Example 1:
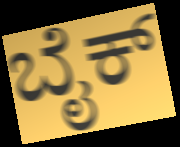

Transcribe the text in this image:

ಬೈಕ್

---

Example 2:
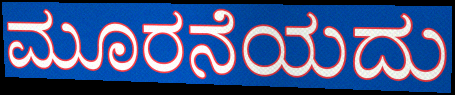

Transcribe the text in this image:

ಮೂರನೆಯದು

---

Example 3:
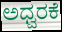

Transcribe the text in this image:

ಅಧ್ವರಕೆ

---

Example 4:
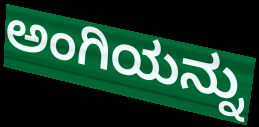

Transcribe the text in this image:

ಅಂಗಿಯನ್ನು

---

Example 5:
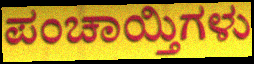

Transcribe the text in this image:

ಪಂಚಾಯ್ತಿಗಳು